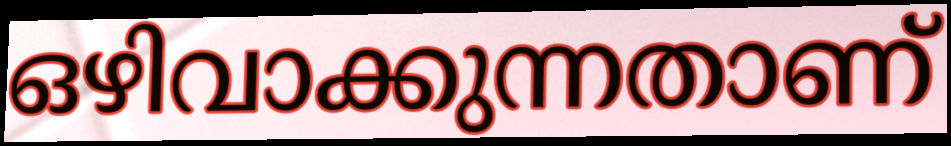
ഒഴിവാക്കുന്നതാണ്